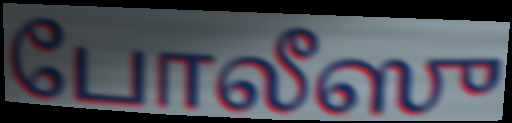
போலீஸு